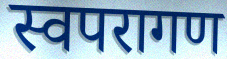
स्वपरागण